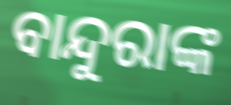
ବାନ୍ଦୁରାଙ୍କ